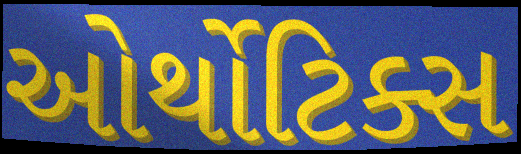
ઓર્થોટિક્સ